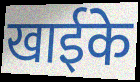
खाईके